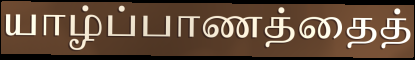
யாழ்ப்பாணத்தைத்